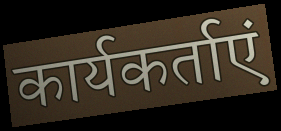
कार्यकर्ताएं